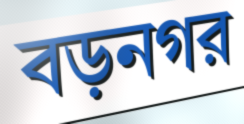
বড়নগর